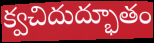
క్వచిదుద్భూతం